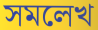
সমলেখ